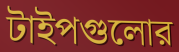
টাইপগুলোর